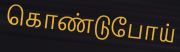
கொண்டுபோய்